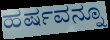
ಹರ್ಷವನ್ನೂ